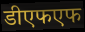
डीएफएफ